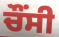
ਚੌਂਸੀ